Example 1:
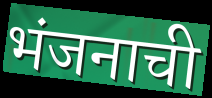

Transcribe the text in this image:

भंजनाची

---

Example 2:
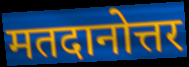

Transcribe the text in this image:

मतदानोत्तर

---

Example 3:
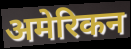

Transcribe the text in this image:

अमेरिकन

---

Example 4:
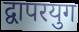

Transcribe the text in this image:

द्वापरयुग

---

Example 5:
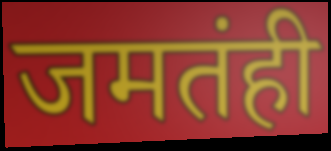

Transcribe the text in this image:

जमतंही